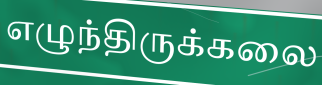
எழுந்திருக்கலை